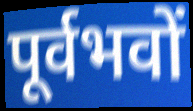
पूर्वभवों